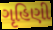
ગૃહિણી